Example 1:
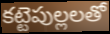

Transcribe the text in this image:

కట్టెపుల్లలతో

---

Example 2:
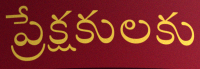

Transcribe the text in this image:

ప్రేక్షకులకు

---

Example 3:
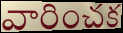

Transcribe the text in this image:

వారించక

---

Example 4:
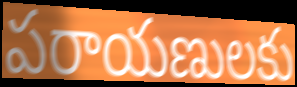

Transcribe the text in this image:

పరాయణులకు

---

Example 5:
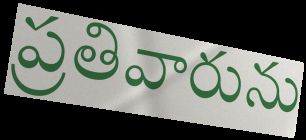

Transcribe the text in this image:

ప్రతివారును